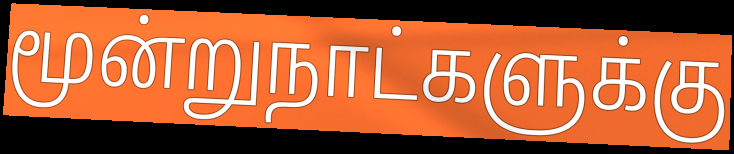
மூன்றுநாட்களுக்கு